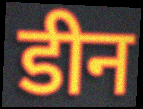
डीन